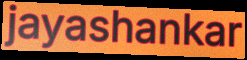
jayashankar